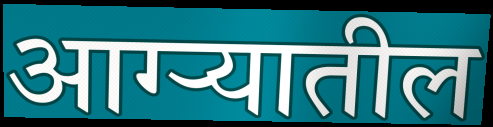
आग्ऱ्यातील